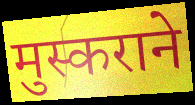
मुस्कराने